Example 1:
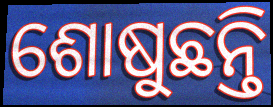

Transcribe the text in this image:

ଶୋଷୁଛନ୍ତି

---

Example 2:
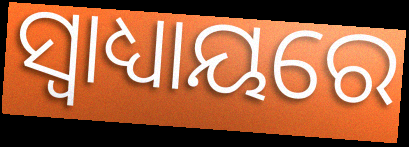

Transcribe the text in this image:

ସ୍ଵାଧ୍ୟାୟରେ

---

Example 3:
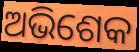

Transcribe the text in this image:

ଅଭିଶେକ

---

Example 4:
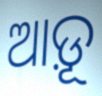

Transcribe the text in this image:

ଆଡ଼ୂ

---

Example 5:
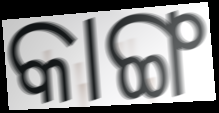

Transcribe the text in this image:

କାଙ୍ଗ